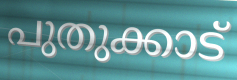
പുതുക്കാട്